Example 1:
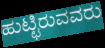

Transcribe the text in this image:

ಹುಟ್ಟಿರುವವರು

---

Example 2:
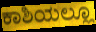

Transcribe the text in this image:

ಕಾಶಿಯಲ್ಲೂ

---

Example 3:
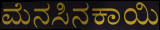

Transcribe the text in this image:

ಮೆನಸಿನಕಾಯಿ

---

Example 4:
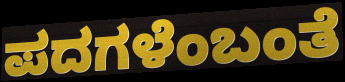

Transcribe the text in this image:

ಪದಗಳೆಂಬಂತೆ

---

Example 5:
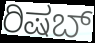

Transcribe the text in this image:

ರಿಷಬ್